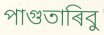
পাগুতাৰিবু